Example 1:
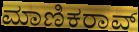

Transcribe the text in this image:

ಮಾಣಿಕರಾವ್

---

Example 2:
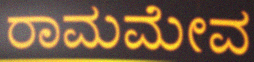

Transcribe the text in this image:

ರಾಮಮೇವ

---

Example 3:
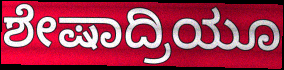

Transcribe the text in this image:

ಶೇಷಾದ್ರಿಯೂ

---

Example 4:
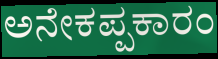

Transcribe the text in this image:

ಅನೇಕಪ್ಪಕಾರಂ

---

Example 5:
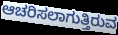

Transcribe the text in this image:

ಆಚರಿಸಲಾಗುತ್ತಿರುವ